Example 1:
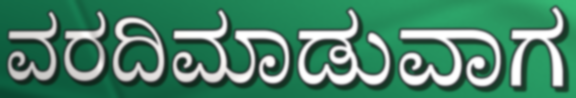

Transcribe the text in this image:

ವರದಿಮಾಡುವಾಗ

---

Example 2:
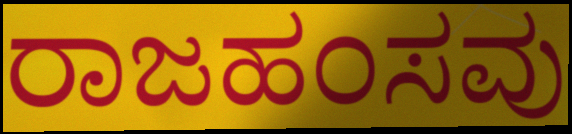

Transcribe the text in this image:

ರಾಜಹಂಸವು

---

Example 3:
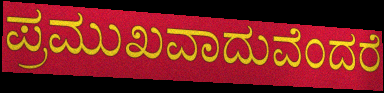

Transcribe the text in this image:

ಪ್ರಮುಖವಾದುವೆಂದರೆ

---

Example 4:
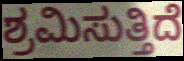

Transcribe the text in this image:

ಶ್ರಮಿಸುತ್ತಿದೆ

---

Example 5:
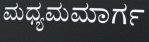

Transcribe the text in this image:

ಮಧ್ಯಮಮಾರ್ಗ